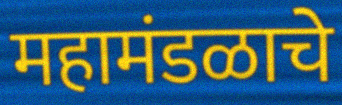
महामंडळाचे